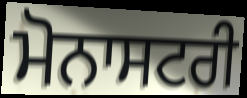
ਮੋਨਾਸਟਰੀ